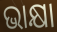
ଭାକ୍ଷା